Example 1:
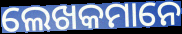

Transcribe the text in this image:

ଲେଖକମାନେ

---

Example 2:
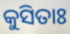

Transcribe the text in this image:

କୁସିତାଃ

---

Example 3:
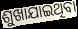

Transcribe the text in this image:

ଶୁଖାଯାଇଥିବା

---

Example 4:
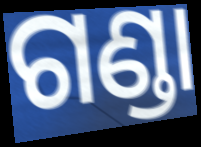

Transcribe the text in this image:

ଗଣ୍ଡା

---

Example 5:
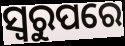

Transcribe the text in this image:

ସ୍ୱରୁପରେ